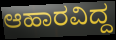
ಆಹಾರವಿದ್ದ